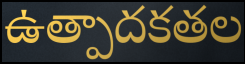
ఉత్పాదకతల